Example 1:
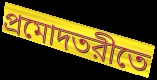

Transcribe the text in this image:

প্রমোদতরীতে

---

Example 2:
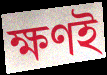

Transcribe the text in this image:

ক্ষণই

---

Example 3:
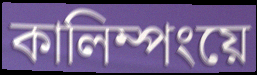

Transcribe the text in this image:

কালিম্পংয়ে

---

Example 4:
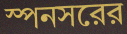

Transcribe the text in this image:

স্পনসরের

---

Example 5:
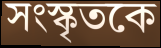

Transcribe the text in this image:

সংস্কৃতকে